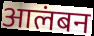
आलंबन